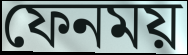
ফেনময়